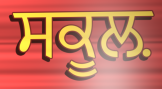
ਸਕੂਲ਼